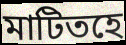
মাটিতহে